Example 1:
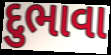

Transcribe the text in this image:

દુભાવા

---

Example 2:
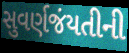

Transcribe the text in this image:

સુવર્ણજંયતીની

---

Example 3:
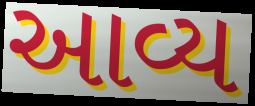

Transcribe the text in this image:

આવ્ય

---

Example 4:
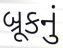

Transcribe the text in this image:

બ્રૂકનું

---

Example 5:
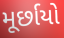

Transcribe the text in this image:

મૂર્છાયો